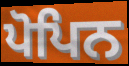
ਪੋਪਿਨ